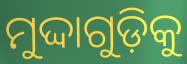
ମୁଦ୍ଦାଗୁଡ଼ିକୁ